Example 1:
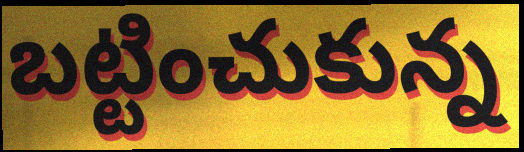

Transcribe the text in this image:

బట్టించుకున్న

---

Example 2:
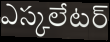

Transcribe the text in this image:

ఎస్కలేటర్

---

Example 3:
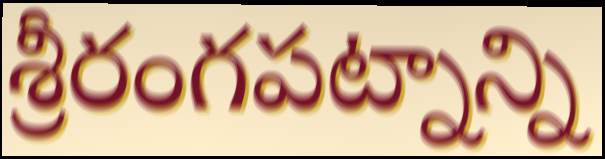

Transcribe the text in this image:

శ్రీరంగపట్నాన్ని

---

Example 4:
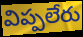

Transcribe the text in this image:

విప్పలేరు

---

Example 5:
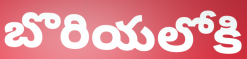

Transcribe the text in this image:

బొరియలోకి